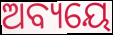
ଅବ୍ୟୟେ